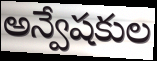
అన్వేషకుల